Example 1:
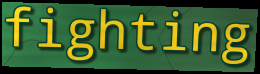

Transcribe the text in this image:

fighting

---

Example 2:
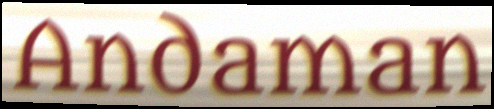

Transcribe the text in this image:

Andaman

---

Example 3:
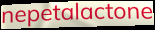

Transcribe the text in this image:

nepetalactone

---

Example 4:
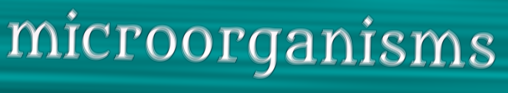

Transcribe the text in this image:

microorganisms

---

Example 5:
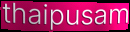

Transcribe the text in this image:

thaipusam